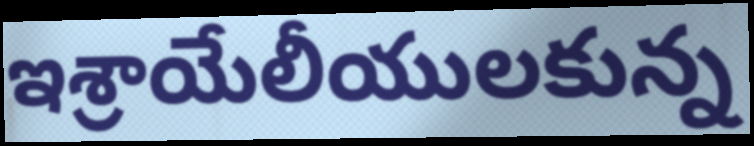
ఇశ్రాయేలీయులకున్న